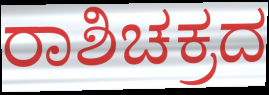
ರಾಶಿಚಕ್ರದ